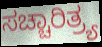
ಸಚ್ಚಾರಿತ್ರ್ಯ